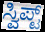
ಸ್ವಿಪ್ಟ್